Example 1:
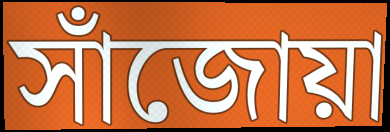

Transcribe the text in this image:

সাঁজোয়া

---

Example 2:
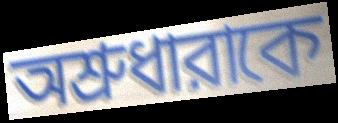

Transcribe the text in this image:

অশ্রুধারাকে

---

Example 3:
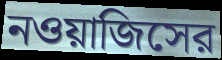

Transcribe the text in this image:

নওয়াজিসের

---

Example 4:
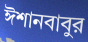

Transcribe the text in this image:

ঈশানবাবুর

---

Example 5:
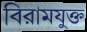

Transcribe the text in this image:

বিরামযুক্ত